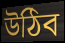
উঠিব